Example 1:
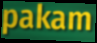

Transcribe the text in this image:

pakam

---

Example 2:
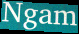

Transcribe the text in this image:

Ngam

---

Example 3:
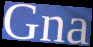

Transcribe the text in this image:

Gna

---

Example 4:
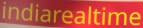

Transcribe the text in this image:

indiarealtime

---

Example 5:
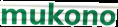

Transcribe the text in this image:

mukono